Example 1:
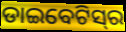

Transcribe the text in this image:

ଡାଇବେଟିସ୍‌ର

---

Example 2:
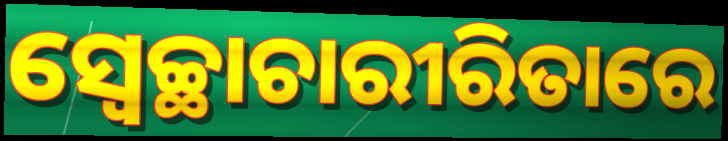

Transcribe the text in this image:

ସ୍ଵେଚ୍ଛାଚାରୀରିତାରେ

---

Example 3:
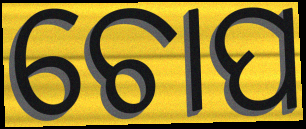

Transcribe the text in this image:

ଚୋପ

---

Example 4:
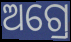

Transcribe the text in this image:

ଅଗ୍ରେ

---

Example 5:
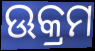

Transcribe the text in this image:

ଊକ୍ରମ